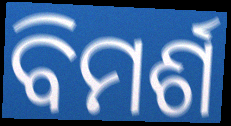
ବିମର୍ଶ